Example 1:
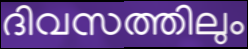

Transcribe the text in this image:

ദിവസത്തിലും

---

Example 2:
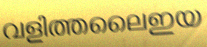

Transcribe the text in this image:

വളിത്തലൈഇയ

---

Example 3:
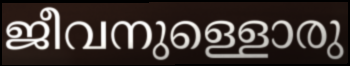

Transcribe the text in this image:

ജീവനുള്ളൊരു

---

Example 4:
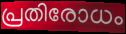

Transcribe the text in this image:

പ്രതിരോധം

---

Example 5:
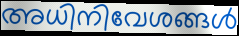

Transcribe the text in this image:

അധിനിവേശങ്ങൾ